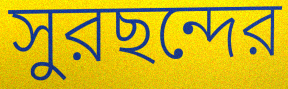
সুরছন্দের